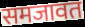
समजावत